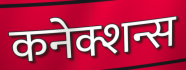
कनेक्शन्स